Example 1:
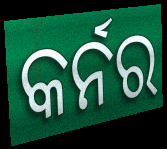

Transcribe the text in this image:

କର୍ନର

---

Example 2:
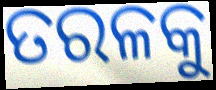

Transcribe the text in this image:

ତରଳକୁ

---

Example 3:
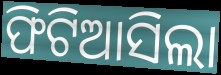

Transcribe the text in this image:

ଫିଟିଆସିଲା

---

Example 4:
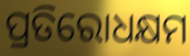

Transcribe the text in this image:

ପ୍ରତିରୋଧକ୍ଷମ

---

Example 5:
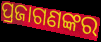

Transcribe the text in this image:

ପ୍ରଜାଗଣଙ୍କର